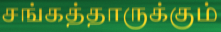
சங்கத்தாருக்கும்